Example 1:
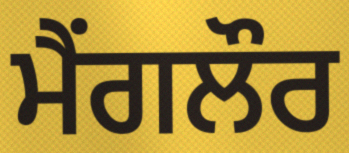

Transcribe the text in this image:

ਮੈਂਗਲੌਰ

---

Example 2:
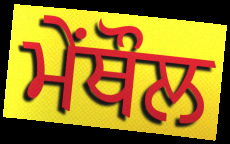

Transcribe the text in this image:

ਮੇਂਥੌਲ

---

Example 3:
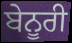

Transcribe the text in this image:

ਬੇਨੂਰੀ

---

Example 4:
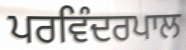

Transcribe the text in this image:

ਪਰਵਿੰਦਰਪਾਲ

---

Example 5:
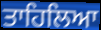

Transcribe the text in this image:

ਤਾਹਿਲਿਆ